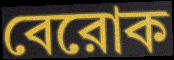
বেরোক